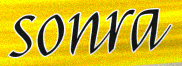
sonra